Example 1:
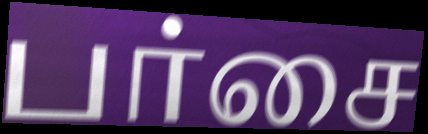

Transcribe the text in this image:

பர்சை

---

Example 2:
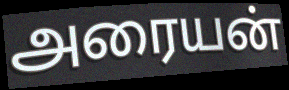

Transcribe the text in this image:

அரையன்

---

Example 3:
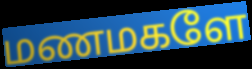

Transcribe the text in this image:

மணமகளே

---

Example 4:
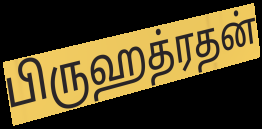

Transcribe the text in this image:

பிருஹத்ரதன்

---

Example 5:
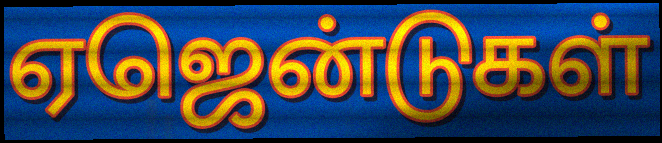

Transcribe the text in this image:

ஏஜென்டுகள்